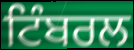
ਟਿੰਬਰਲ